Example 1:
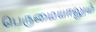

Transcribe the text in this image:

பெருமையாலும்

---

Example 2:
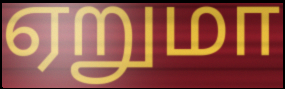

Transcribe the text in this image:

ஏறுமா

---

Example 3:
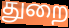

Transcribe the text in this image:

துறை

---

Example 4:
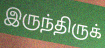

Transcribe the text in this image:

இருந்திருக்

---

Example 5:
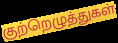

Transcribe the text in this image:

குற்றெழுத்துகள்